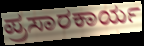
ಪ್ರಸಾರಕಾರ್ಯ